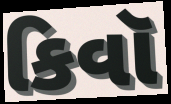
કિવૉ